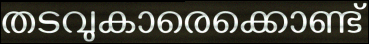
തടവുകാരെക്കൊണ്ട്